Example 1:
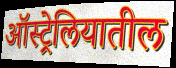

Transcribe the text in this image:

ऑस्ट्रेलियातील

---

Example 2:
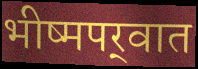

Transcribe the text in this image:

भीष्मपर्वात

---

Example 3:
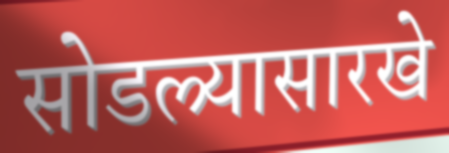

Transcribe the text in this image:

सोडल्यासारखे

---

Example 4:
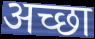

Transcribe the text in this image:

अच्छा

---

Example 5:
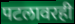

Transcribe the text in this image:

पटलावरही